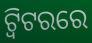
ଟ୍ବିଟରରେ